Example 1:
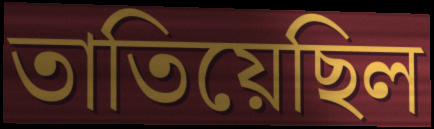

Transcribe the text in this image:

তাতিয়েছিল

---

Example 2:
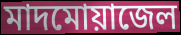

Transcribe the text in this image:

মাদমোয়াজেল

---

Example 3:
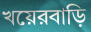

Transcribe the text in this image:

খয়েরবাড়ি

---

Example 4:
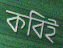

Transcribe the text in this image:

কবিই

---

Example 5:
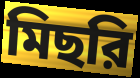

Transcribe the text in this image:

মিছরি